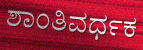
ಶಾಂತಿವರ್ಧಕ